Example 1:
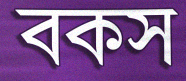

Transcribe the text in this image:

বকস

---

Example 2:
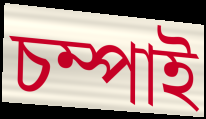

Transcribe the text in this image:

চম্পাই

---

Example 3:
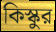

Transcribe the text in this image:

কিস্কুর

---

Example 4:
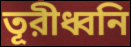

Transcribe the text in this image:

তূরীধ্বনি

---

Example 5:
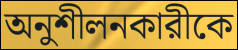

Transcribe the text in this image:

অনুশীলনকারীকে